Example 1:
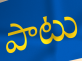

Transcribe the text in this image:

పాటు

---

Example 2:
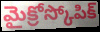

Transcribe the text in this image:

మైక్రోస్కోపిక్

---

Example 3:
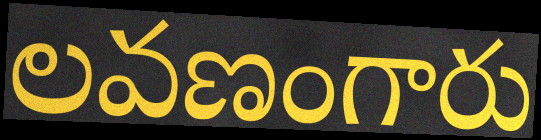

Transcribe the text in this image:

లవణంగారు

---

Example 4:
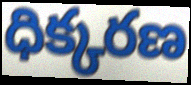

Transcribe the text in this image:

ధిక్కరణ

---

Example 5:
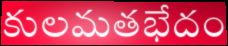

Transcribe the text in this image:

కులమతభేదం